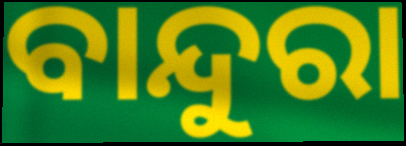
ବାନ୍ଦୁରା